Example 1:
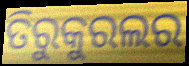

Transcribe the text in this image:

ତିରୁକୁରଲର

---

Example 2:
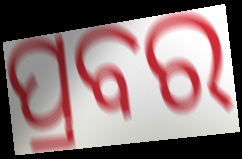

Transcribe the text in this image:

ପ୍ରବର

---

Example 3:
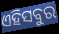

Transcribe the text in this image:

ଏହିସବୁର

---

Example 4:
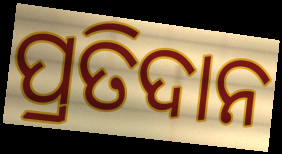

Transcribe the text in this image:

ପ୍ରତିଦାନ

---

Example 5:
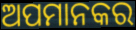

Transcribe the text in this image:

ଅପମାନକର